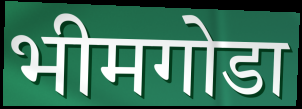
भीमगोडा